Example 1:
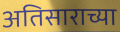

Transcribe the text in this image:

अतिसाराच्या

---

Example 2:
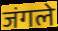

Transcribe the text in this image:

जंगले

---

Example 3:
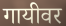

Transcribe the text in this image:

गायीवर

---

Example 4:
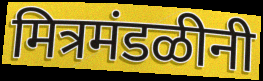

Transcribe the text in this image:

मित्रमंडळीनी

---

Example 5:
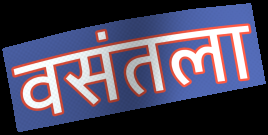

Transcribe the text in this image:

वसंतला